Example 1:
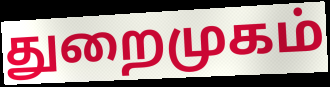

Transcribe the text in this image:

துறைமுகம்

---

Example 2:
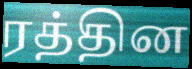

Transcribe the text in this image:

ரத்தின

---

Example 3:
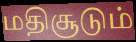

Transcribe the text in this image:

மதிசூடும்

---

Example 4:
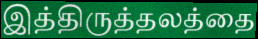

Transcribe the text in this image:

இத்திருத்தலத்தை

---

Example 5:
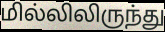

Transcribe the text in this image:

மில்லிலிருந்து